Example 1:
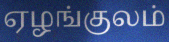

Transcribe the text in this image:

ஏழங்குலம்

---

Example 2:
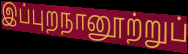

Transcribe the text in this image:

இப்புறநானூற்றுப்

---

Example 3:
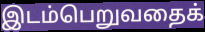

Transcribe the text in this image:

இடம்பெறுவதைக்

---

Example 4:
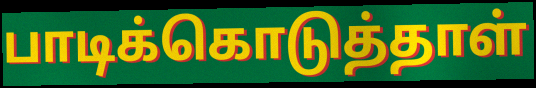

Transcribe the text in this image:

பாடிக்கொடுத்தாள்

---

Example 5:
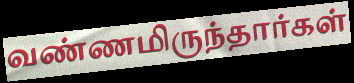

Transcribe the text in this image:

வண்ணமிருந்தார்கள்